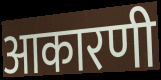
आकारणी